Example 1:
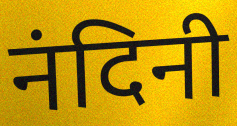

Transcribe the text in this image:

नंदिनी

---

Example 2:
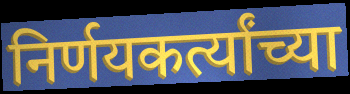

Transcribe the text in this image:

निर्णयकर्त्यांच्या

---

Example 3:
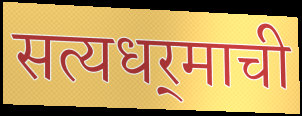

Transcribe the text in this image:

सत्यधर्माची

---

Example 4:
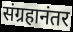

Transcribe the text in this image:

संग्रहानंतर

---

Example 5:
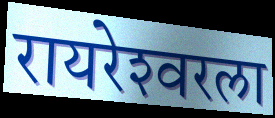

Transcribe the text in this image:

रायरेश्वरला